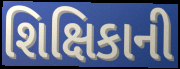
શિક્ષિકાની